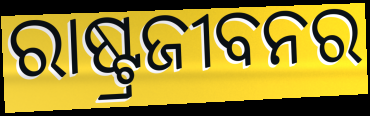
ରାଷ୍ଟ୍ରଜୀବନର